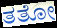
ತತೋ